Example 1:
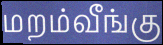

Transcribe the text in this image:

மறம்வீங்கு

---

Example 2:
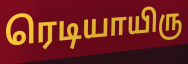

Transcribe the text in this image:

ரெடியாயிரு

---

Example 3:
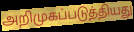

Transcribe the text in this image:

அறிமுகப்படுத்தியது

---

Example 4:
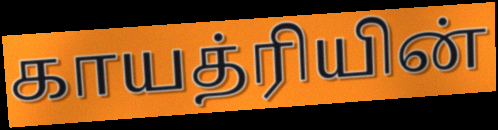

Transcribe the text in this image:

காயத்ரியின்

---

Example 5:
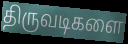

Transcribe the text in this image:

திருவடிகளை